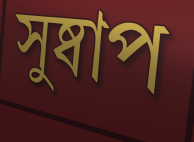
সুষ্বাপ